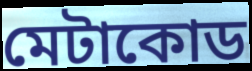
মেটাকোড